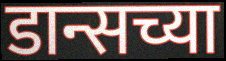
डान्सच्या